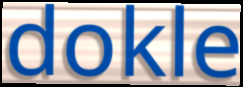
dokle